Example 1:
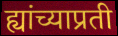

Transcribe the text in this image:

ह्यांच्याप्रती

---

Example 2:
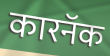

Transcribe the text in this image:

कारनॅक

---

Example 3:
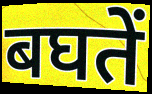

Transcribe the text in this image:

बघतें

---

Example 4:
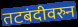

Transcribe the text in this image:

तटबंदीवरुन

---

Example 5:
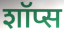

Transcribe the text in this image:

शॉप्स